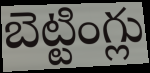
బెట్టింగ్లు